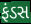
ફંડસ